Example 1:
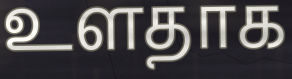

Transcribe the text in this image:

உளதாக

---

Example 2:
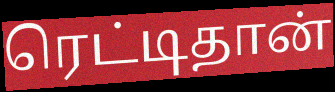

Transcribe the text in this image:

ரெட்டிதான்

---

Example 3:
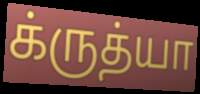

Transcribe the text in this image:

க்ருத்யா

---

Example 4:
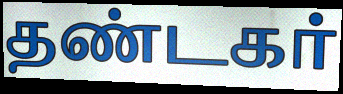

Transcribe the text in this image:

தண்டகர்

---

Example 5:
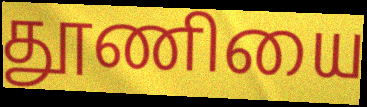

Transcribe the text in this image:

தூணியை